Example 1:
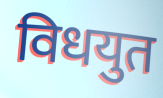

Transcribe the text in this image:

विधयुत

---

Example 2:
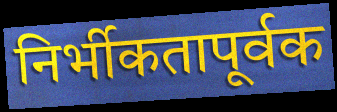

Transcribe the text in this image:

निर्भीकतापूर्वक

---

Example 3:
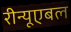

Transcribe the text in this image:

रीन्यूएबल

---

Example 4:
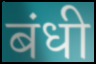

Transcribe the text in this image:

बंधी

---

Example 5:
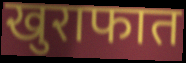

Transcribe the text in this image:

खुराफात